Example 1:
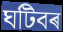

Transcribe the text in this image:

ঘটিবৰ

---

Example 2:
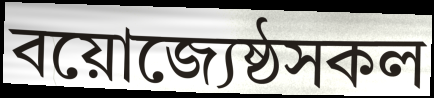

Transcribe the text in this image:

বয়োজ্যেষ্ঠসকল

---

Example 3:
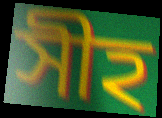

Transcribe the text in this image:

সীহ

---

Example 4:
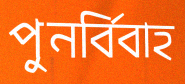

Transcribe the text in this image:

পুনৰ্বিবাহ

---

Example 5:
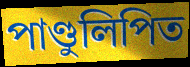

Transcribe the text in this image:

পাণ্ডুলিপিত